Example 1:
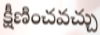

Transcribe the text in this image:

క్షీణించవచ్చు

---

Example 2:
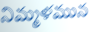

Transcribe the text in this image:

నిమ్మళమున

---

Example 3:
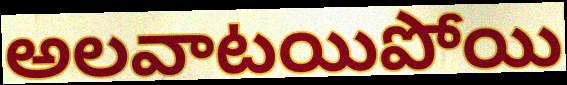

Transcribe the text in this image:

అలవాటయిపోయి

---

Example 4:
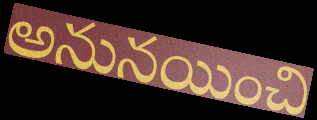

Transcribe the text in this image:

అనునయించి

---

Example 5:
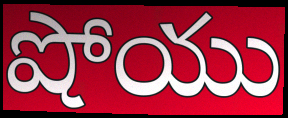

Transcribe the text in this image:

షోయు